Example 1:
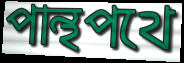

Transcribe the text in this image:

পান্থপথে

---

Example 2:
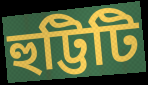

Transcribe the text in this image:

হুট্টিটি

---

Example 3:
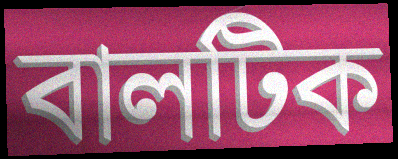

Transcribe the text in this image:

বালটিক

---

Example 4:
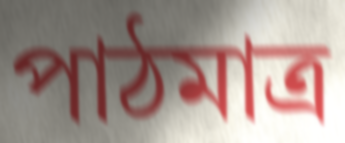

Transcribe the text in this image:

পাঠমাত্র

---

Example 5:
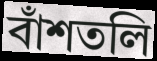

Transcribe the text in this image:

বাঁশতলি